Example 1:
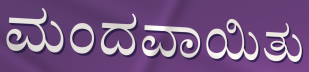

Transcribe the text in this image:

ಮಂದವಾಯಿತು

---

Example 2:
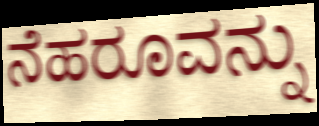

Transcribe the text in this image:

ನೆಹರೂವನ್ನು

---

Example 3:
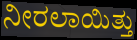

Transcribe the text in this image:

ನೀರಲಾಯಿತ್ತು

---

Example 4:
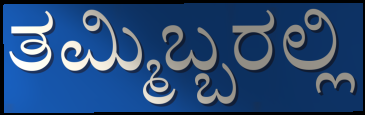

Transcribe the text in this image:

ತಮ್ಮಿಬ್ಬರಲ್ಲಿ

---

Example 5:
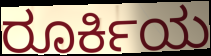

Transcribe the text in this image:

ರೂರ್ಕಿಯ